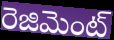
రెజిమెంట్